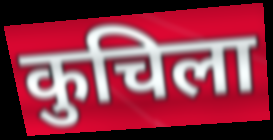
कुचिला